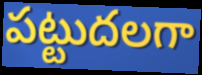
పట్టుదలగా